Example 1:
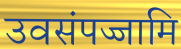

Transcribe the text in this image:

उवसंपज्जामि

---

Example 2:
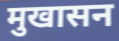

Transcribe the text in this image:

मुखासन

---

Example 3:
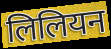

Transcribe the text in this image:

लिलियन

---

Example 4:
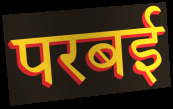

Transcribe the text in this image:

परबई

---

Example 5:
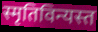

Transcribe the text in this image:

स्मृतिविन्यस्त